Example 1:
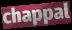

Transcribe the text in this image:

chappal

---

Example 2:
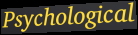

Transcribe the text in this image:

Psychological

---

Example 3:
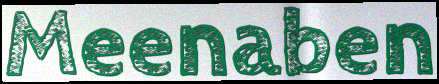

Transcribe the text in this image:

Meenaben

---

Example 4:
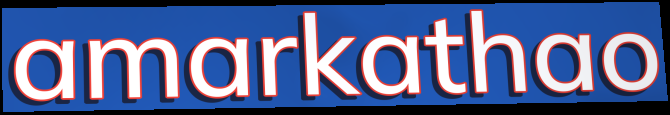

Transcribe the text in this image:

amarkathao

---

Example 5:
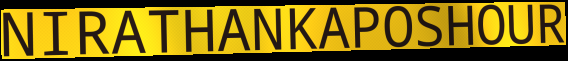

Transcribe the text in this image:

NIRATHANKAPOSHOUR